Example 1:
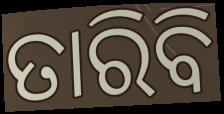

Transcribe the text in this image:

ତାରିବି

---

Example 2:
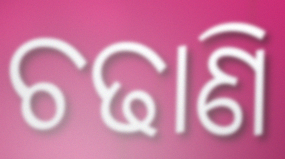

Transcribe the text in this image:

ଚଢାଣି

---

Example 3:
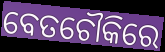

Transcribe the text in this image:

ବେତଚୌକିରେ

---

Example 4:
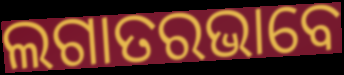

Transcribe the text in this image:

ଲଗାତରଭାବେ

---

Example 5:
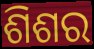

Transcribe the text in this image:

ଶିଶର